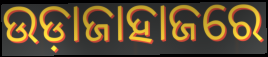
ଉଡ଼ାଜାହାଜରେ